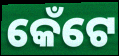
କେଁଟେ